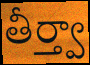
తీర్త్వా